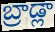
బ్రాడ్లా